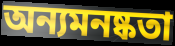
অন্যমনষ্কতা